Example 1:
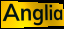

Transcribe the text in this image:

Anglia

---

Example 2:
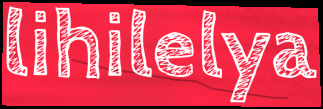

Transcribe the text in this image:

lihilelya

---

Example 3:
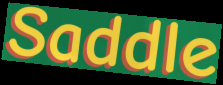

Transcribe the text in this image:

Saddle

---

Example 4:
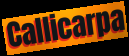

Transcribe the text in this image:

Callicarpa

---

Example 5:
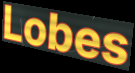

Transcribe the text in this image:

Lobes